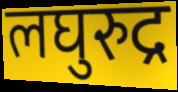
लघुरुद्र